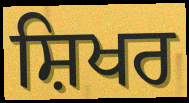
ਸ਼ਿਖਰ